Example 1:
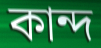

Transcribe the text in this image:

কান্দ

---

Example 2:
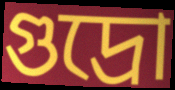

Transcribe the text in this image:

গুদ্ৰো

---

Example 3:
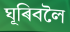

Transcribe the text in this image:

ঘূৰিবলৈ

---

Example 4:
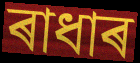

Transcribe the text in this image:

ৰাধাৰ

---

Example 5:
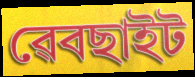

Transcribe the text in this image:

ৱেবছাইট